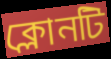
ক্লোনটি